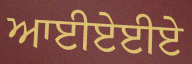
ਆਈਏਈਏ